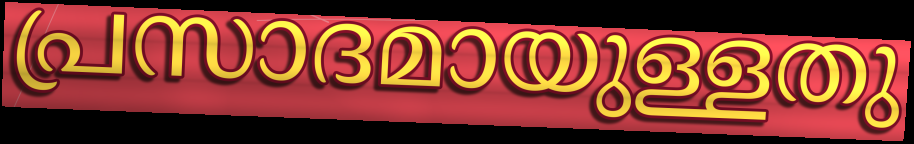
പ്രസാദമായുള്ളതു